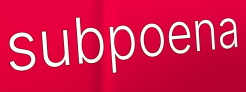
subpoena